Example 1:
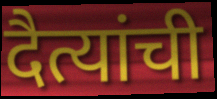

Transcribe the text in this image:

दैत्यांची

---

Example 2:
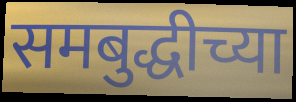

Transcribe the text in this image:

समबुद्धीच्या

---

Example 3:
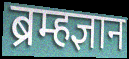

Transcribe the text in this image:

ब्रम्हज्ञान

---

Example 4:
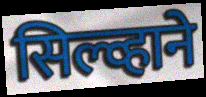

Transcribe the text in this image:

सिल्व्हाने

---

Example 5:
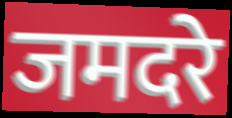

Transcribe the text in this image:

जमदरे